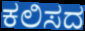
ಕಲಿಸದ